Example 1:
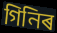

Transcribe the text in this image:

গিনিৰ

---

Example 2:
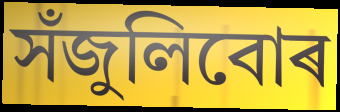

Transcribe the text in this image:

সঁজুলিবোৰ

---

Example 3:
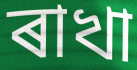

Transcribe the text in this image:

ৰাখা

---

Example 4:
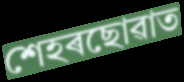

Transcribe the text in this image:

শেহৰছোৱাত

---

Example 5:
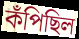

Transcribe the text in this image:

কঁপিছিল